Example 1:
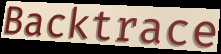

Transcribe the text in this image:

Backtrace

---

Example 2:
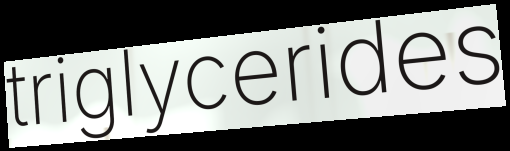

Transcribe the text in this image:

triglycerides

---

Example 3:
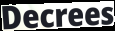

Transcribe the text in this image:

Decrees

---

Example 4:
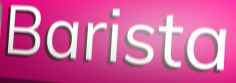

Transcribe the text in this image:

Barista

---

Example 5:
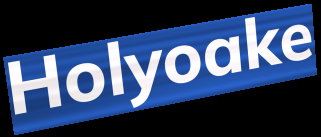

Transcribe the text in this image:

Holyoake